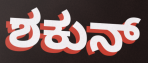
ಶಕುನ್